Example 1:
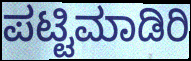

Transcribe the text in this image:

ಪಟ್ಟಿಮಾಡಿರಿ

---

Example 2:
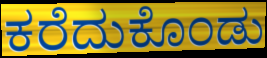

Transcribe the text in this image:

ಕರೆದುಕೊಂಡು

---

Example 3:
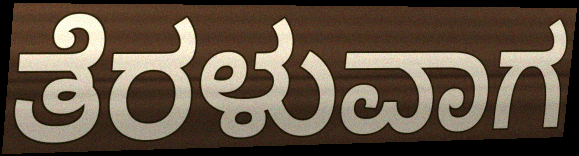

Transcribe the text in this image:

ತೆರಳುವಾಗ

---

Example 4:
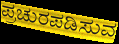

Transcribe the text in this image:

ಪ್ರಚುರಪಡಿಸುವ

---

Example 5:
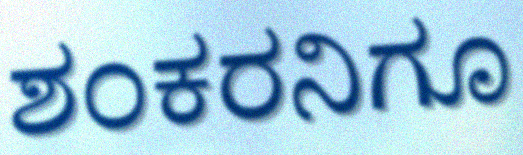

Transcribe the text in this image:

ಶಂಕರನಿಗೂ